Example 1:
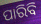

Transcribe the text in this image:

ପାରିବି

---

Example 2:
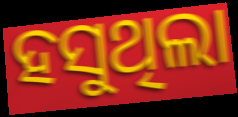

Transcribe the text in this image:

ହସୁଥିଲା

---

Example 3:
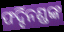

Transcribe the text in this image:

ଫର୍ଦ୍ଦିନଣ୍ଡଙ୍କ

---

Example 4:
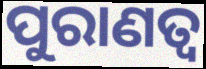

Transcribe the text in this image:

ପୁରାଣତ୍ୱ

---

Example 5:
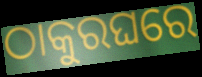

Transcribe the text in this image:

ଠାକୁରଘରେ